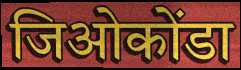
जिओकोंडा